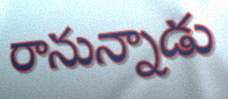
రానున్నాడు